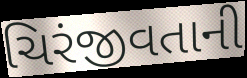
ચિરંજીવતાની